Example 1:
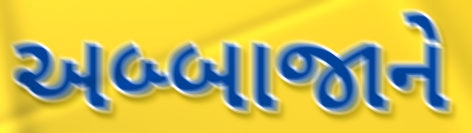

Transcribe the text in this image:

અબ્બાજાને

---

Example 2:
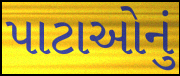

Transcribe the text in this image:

પાટાઓનું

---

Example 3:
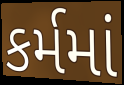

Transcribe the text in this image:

કર્મમાં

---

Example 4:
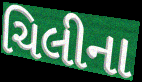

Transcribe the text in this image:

ચિલીના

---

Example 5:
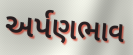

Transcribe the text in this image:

અર્પણભાવ